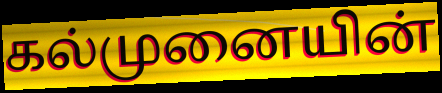
கல்முனையின்